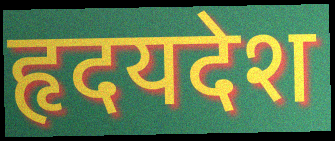
हृदयदेश